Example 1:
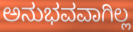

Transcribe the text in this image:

ಅನುಭವವಾಗಿಲ್ಲ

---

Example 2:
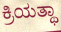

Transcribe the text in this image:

ಕ್ರಿಯತ್ಥಾ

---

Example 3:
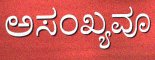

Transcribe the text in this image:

ಅಸಂಖ್ಯವೂ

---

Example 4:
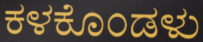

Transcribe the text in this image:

ಕಳಕೊಂಡಳು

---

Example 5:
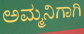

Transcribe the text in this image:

ಅಮ್ಮನಿಗಾಗಿ